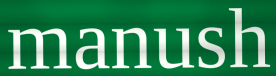
manush